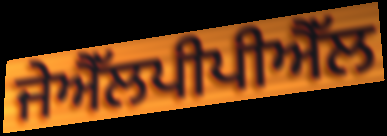
ਜੇਐੱਲਪੀਪੀਐੱਲ